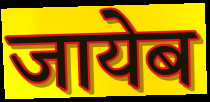
जायेब